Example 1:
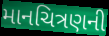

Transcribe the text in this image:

માનચિત્રણની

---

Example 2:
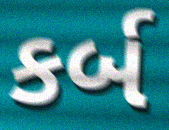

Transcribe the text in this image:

કર્બ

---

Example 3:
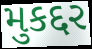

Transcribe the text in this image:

મુકદ્દર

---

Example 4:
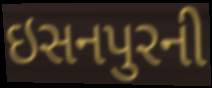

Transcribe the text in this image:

ઇસનપુરની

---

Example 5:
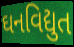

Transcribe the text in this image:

ઘનવિદ્યુત